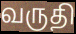
வருதி